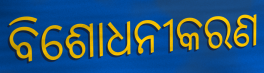
ବିଶୋଧନୀକରଣ